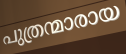
പുത്രന്മാരായ